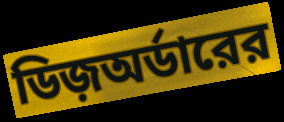
ডিজ়অর্ডারের